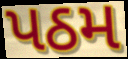
પઠમ